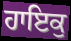
ਹਾਇਕੁ